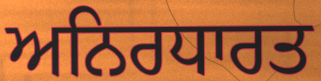
ਅਨਿਰਧਾਰਤ